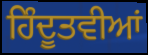
ਹਿੰਦੂਤਵੀਆਂ